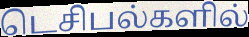
டெசிபல்களில்